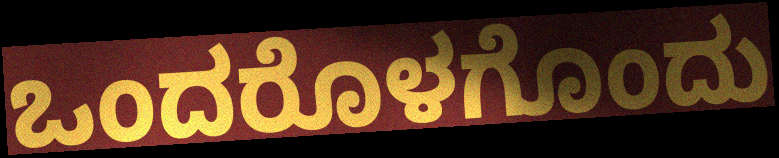
ಒಂದರೊಳಗೊಂದು